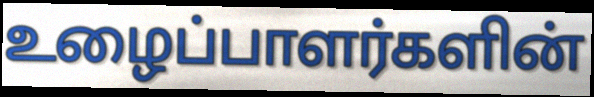
உழைப்பாளர்களின்